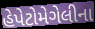
હેપેટોમેગેલીના